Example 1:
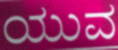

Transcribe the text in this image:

ಯುವ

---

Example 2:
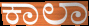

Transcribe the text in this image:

ಕಾಲಾ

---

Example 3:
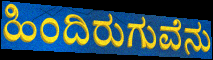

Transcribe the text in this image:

ಹಿಂದಿರುಗುವೆನು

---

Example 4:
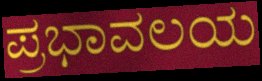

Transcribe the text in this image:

ಪ್ರಭಾವಲಯ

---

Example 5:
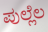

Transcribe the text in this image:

ಪುಲ್ಲೆಲ